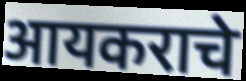
आयकराचे